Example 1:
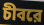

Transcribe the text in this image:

চীবরে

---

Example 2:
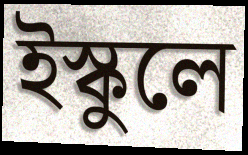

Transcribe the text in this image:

ইস্কুলে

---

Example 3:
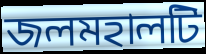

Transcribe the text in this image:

জলমহালটি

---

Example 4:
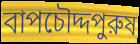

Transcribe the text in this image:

বাপচৌদ্দপুরুষ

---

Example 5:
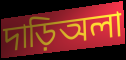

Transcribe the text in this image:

দাড়িঅলা